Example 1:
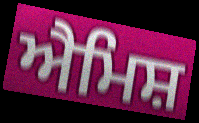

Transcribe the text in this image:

ਐਮਿਸ਼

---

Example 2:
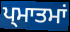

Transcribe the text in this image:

ਪ੍ਮਾਤਮਾਂ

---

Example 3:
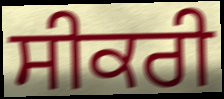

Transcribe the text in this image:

ਸੀਕਰੀ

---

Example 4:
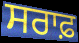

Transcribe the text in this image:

ਸਰਾਫ਼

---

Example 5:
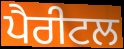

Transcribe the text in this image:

ਪੈਰੀਟਲ